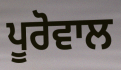
ਪੂਰੋਵਾਲ